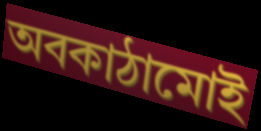
অবকাঠামোই